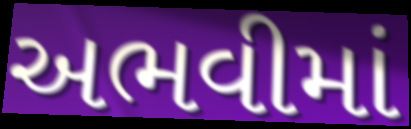
અભવીમાં